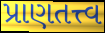
પ્રાણતત્ત્વ